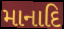
માનાદિ